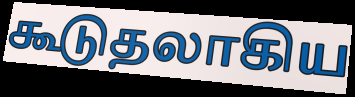
கூடுதலாகிய